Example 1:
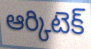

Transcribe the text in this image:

ఆర్కిటెక్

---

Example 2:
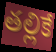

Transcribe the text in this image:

తల్లికే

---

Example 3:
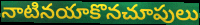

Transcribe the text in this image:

నాటినయాకొనచూపులు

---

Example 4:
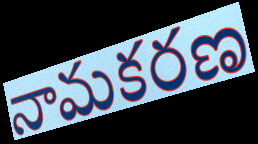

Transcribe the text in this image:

నామకరణ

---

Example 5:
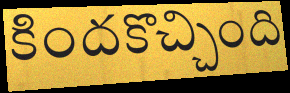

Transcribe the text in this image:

కిందకొచ్చింది